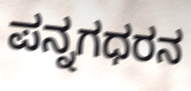
ಪನ್ನಗಧರನ